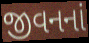
જીવનનાં